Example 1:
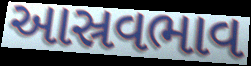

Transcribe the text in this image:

આસ્રવભાવ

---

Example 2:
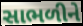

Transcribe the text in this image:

સાભળીને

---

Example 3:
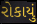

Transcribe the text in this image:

રોકાયું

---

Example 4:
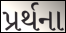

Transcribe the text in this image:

પ્રર્થના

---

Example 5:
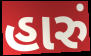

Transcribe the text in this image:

હારું